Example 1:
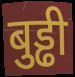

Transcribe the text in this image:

बुड्ढी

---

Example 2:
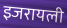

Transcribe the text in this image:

इजरायली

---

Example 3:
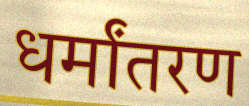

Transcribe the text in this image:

धर्मांतरण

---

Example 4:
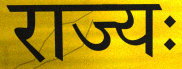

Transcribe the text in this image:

राज्यः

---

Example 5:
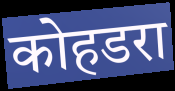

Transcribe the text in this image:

कोहडरा